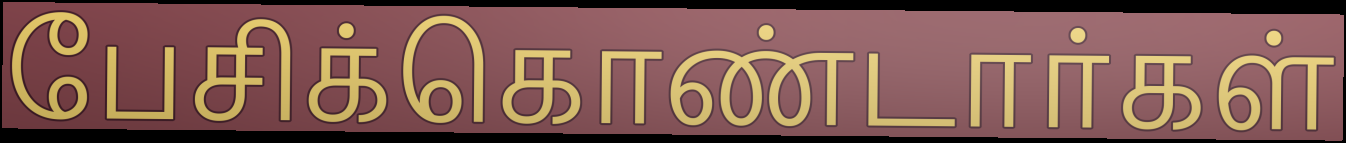
பேசிக்கொண்டார்கள்